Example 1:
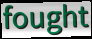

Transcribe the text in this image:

fought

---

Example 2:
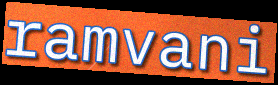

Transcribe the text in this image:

ramvani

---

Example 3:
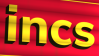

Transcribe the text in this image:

incs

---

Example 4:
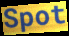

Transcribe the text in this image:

Spot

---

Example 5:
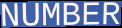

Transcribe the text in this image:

NUMBER